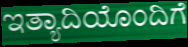
ಇತ್ಯಾದಿಯೊಂದಿಗೆ